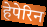
हेपेरिन